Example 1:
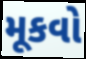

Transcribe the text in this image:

મૂકવો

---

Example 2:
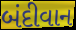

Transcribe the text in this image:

બંદીવાન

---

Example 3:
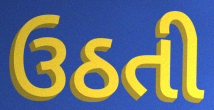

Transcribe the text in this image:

ઉઠતી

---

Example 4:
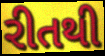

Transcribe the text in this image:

રીતથી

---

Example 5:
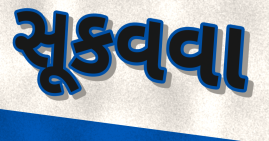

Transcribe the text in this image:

સૂકવવા